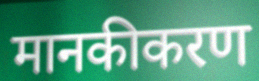
मानकीकरण